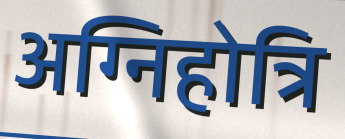
अग्निहोत्रि